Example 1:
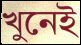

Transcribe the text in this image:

খুনেই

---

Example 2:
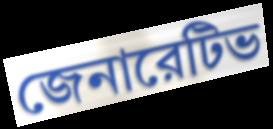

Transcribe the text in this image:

জেনারেটিভ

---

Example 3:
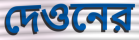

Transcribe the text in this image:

দেওনের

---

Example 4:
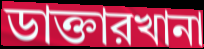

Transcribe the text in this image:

ডাক্তারখানা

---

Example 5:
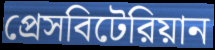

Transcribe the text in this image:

প্রেসবিটেরিয়ান